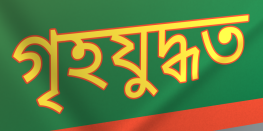
গৃহযুদ্ধত